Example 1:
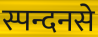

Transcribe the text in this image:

स्पन्दनसे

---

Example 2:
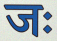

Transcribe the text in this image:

जः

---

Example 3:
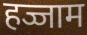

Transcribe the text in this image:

हज्जाम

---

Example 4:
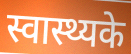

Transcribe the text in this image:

स्वास्थ्यके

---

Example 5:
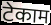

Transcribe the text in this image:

टेकाम